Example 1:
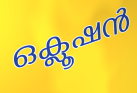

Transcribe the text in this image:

ഒക്ലൂഷൻ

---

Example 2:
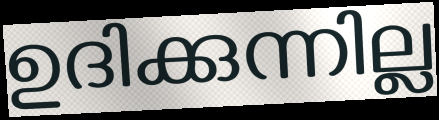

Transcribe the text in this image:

ഉദിക്കുന്നില്ല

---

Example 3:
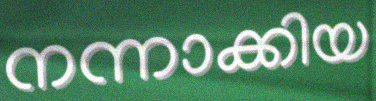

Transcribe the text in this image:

നന്നാക്കിയ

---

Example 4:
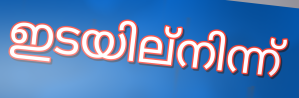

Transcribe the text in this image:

ഇടയില്നിന്ന്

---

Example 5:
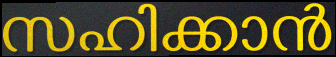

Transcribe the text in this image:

സഹിക്കാൻ